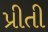
પ્રીતી